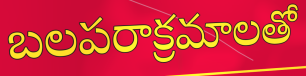
బలపరాక్రమాలతో